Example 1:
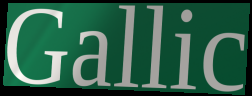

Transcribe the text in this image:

Gallic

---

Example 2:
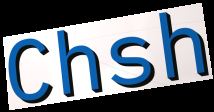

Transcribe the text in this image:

Chsh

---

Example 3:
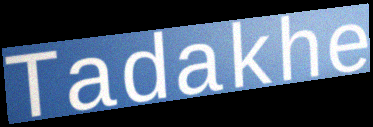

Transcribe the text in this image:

Tadakhe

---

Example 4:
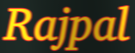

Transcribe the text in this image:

Rajpal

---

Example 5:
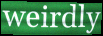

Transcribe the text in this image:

weirdly